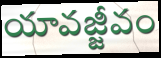
యావజ్జీవం